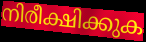
നിരീക്ഷിക്കുക